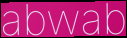
abwab